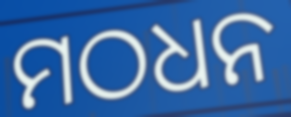
ମଠଧନ